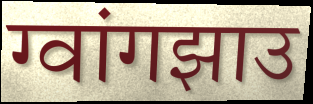
ग्वांगझाउ